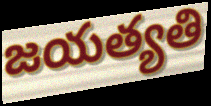
జయత్యతి